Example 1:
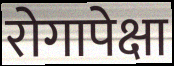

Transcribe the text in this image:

रोगापेक्षा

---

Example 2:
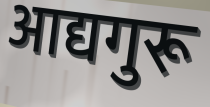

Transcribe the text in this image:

आद्यगुरू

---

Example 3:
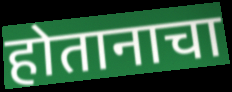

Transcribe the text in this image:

होतानाचा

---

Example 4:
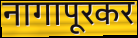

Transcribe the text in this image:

नागापूरकर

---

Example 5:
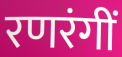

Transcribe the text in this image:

रणरंगीं